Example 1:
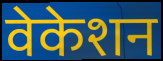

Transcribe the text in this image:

वेकेशन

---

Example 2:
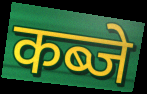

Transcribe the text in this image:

कब्जे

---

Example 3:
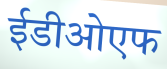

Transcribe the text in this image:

ईडीओएफ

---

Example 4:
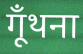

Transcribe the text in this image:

गूँथना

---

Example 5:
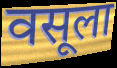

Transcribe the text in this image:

वसूला